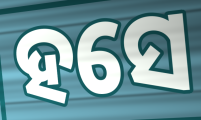
ହସେ